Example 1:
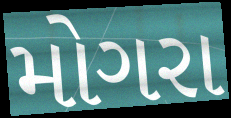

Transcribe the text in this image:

મોગરા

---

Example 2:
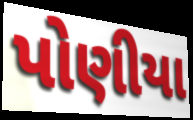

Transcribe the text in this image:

પોણીયા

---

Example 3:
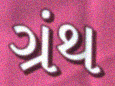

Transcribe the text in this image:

ગ્રંથ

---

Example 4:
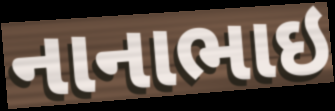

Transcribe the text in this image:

નાનાભાઇ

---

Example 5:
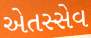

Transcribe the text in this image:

એતસ્સેવ